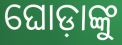
ଘୋଡ଼ାଙ୍କୁ